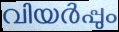
വിയർപ്പും